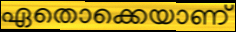
ഏതൊക്കെയാണ്